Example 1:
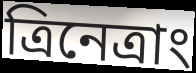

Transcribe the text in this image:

ত্রিনেত্রাং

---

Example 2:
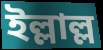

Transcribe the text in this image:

ইল্লাল্ল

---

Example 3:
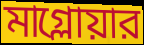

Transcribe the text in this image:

মাগ্লোয়ার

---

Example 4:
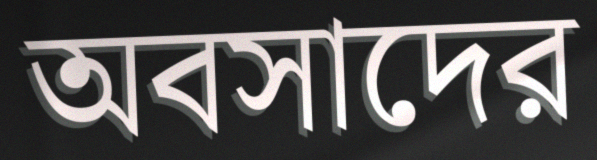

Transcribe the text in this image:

অবসাদের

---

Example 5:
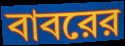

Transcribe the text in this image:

বাবরের